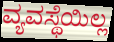
ವ್ಯವಸ್ಥೆಯಿಲ್ಲ